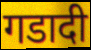
गडादी